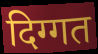
दिग्गत